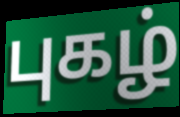
புகழ்